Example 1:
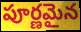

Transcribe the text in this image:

పూర్ణమైన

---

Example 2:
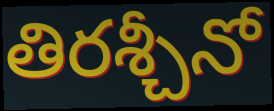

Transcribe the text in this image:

తిరశ్చీనో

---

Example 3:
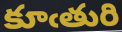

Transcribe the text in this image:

కూఁతురి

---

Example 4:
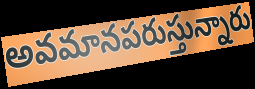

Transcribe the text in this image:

అవమానపరుస్తున్నారు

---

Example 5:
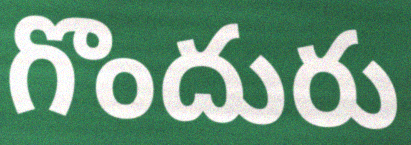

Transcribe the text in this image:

గొందురు